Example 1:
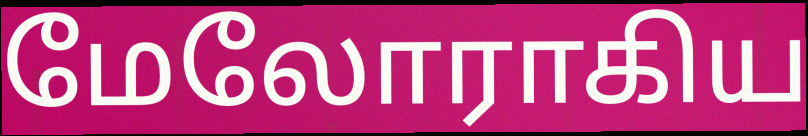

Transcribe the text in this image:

மேலோராகிய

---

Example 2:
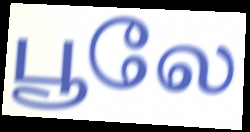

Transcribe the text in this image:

பூலே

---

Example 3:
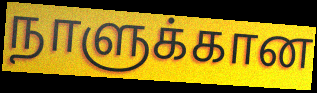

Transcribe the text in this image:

நாளுக்கான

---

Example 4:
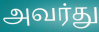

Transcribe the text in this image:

அவர்து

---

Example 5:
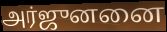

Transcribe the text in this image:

அர்ஜுனனை